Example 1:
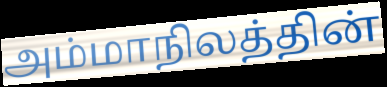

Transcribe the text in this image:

அம்மாநிலத்தின்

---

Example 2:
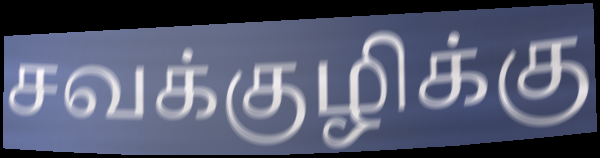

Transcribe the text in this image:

சவக்குழிக்கு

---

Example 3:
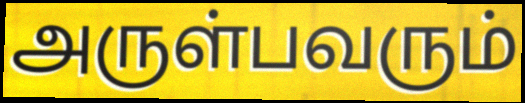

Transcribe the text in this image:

அருள்பவரும்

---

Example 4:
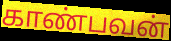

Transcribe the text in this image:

காண்பவன்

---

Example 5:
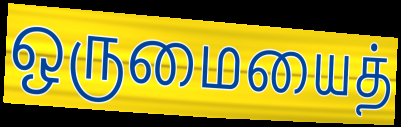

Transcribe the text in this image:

ஒருமையைத்